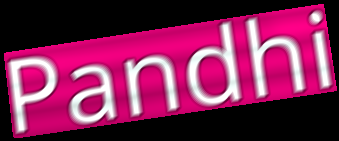
Pandhi